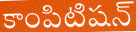
కాంపిటిషన్